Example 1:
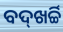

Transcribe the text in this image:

ବଦ୍‌ଖର୍ଚ୍ଚି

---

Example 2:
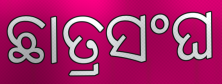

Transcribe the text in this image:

ଛାତ୍ରସଂଘ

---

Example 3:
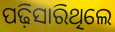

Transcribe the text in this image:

ପଢ଼ିସାରିଥିଲେ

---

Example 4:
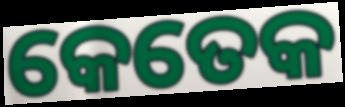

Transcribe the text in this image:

କେତେକ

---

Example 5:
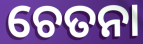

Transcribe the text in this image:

ଚେତନା